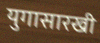
युगासारखी